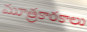
మూత్రకారకాలు